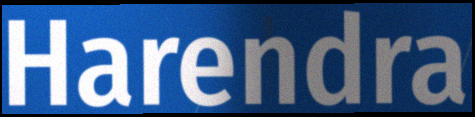
Harendra